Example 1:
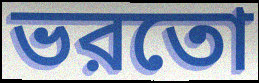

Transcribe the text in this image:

ভরতো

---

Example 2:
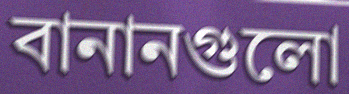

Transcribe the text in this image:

বানানগুলো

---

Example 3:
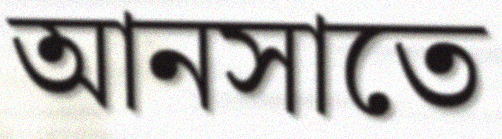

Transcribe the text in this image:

আনসাতে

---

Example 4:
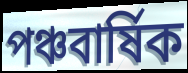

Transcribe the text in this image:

পঞ্চবার্ষিক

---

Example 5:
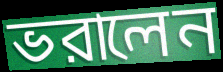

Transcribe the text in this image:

ভরালেন